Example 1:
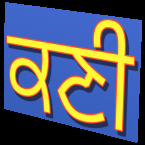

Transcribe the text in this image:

ਕਣੀ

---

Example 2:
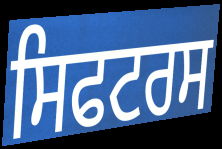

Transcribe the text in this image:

ਸਿਫਟਰਸ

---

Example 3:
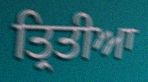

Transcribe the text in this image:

ਤ੍ਰਿਤੀਆ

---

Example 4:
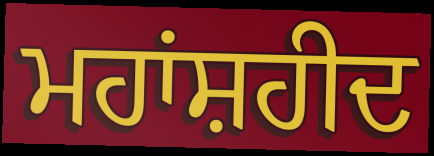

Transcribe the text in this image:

ਮਹਾਂਸ਼ਹੀਦ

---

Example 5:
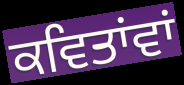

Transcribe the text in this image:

ਕਵਿਤਾਂਵਾਂ